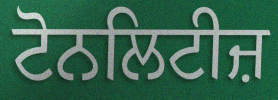
ਟੋਨਲਿਟੀਜ਼